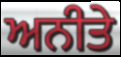
ਅਨੀਤੇ